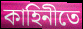
কাহিনীতে